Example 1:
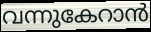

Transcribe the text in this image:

വന്നുകേറാൻ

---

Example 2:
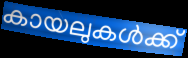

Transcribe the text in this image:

കായലുകൾക്ക്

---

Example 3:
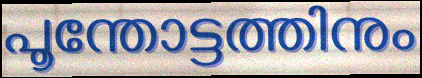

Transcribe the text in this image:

പൂന്തോട്ടത്തിനും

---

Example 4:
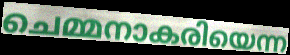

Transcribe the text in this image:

ചെമ്മനാകരിയെന്ന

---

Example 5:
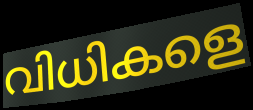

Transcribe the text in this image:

വിധികളെ